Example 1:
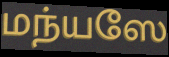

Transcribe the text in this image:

மந்யஸே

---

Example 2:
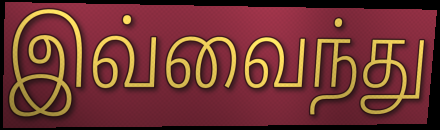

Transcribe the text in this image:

இவ்வைந்து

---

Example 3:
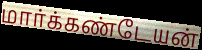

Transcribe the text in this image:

மார்க்கண்டேயன்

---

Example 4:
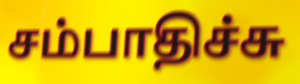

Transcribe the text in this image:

சம்பாதிச்சு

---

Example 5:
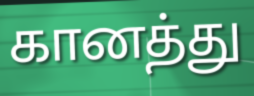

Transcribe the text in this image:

கானத்து